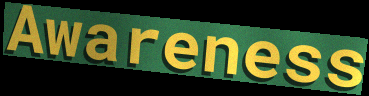
Awareness